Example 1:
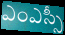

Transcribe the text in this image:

ఎంఎస్సీ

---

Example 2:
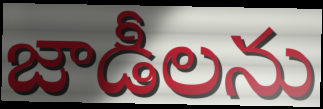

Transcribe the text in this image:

జాడీలను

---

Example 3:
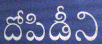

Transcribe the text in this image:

దోపిడీని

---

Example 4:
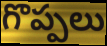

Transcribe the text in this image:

గొప్పలు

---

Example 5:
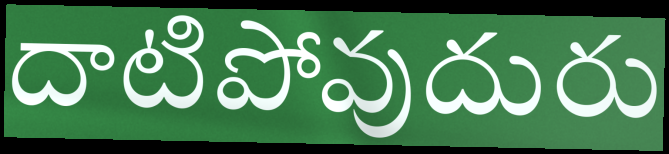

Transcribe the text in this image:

దాటిపోవుదురు